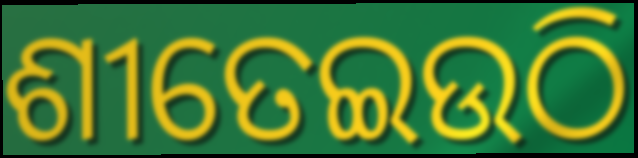
ଶୀତେଇଉଠି